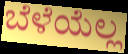
ಬೆಳೆಯೆಲ್ಲ